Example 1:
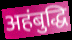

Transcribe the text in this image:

अहंबुद्धि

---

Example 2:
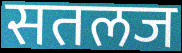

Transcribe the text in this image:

सतलज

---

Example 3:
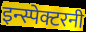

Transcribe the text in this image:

इन्स्पेक्टरनी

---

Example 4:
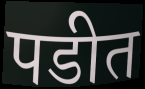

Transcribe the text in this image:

पडीत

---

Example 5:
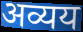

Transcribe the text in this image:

अव्यय